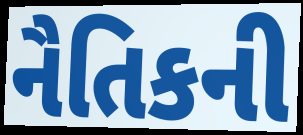
નૈતિકની